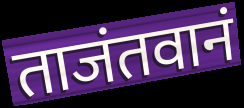
ताजंतवानं